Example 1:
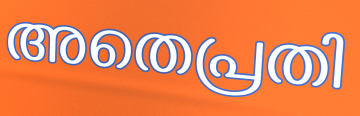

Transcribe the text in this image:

അതെപ്രതി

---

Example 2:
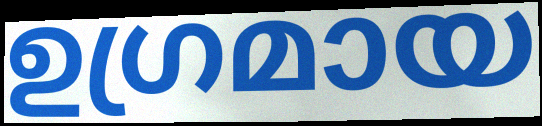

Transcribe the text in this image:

ഉഗ്രമായ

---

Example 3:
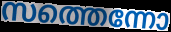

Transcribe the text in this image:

സത്തെന്നോ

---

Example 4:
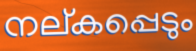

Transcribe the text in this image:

നല്കപ്പെടും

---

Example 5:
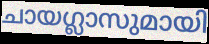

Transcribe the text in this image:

ചായഗ്ലാസുമായി